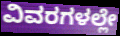
ವಿವರಗಳಲ್ಲೇ